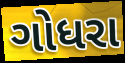
ગોધરા